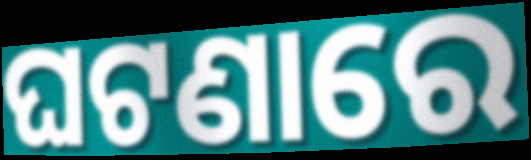
ଘଟଣାରେ